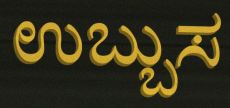
ಉಬ್ಬುಸ